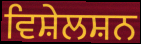
ਵਿਸ਼ੇਲਸ਼ਨ